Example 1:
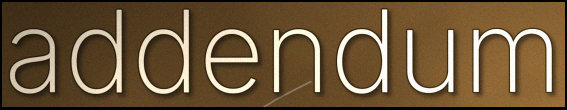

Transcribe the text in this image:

addendum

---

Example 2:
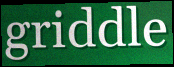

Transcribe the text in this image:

griddle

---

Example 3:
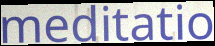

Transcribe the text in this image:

meditatio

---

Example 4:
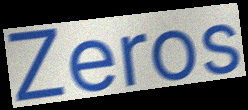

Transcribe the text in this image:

Zeros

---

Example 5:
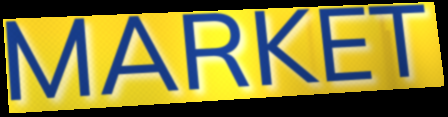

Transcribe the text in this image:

MARKET